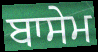
ਬਾਸੇਮ